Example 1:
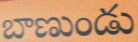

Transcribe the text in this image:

బాణుండు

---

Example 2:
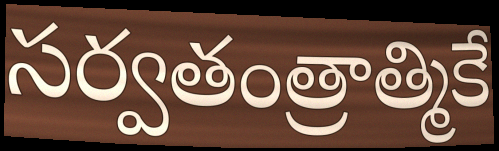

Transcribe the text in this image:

సర్వతంత్రాత్మికే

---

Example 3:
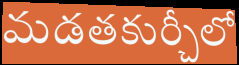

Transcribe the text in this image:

మడతకుర్చీలో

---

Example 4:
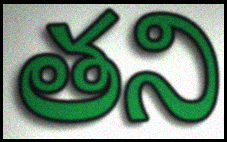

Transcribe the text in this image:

తని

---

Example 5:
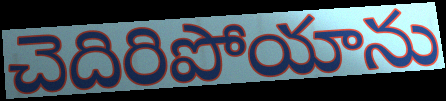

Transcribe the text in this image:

చెదిరిపోయాను